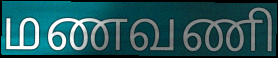
மணவணி